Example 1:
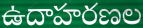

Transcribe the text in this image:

ఉదాహరణల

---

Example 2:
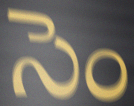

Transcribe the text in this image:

సెం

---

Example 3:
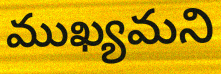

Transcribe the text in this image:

ముఖ్యమని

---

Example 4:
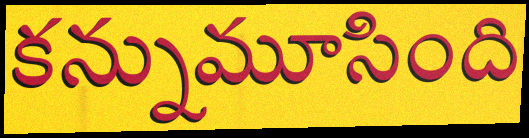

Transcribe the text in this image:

కన్నుమూసింది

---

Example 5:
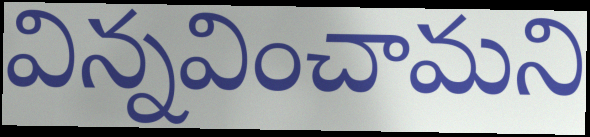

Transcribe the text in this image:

విన్నవించామని